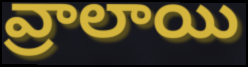
వ్రాలాయి